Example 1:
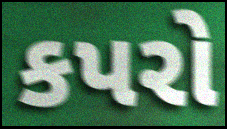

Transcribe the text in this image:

કપરો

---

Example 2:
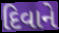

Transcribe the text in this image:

દિવાને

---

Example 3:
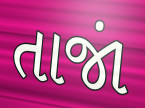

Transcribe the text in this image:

તાજાં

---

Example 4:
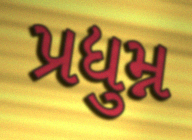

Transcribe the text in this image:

પ્રદ્યુમ્ન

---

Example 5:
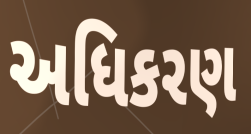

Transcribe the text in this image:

અધિકરણ